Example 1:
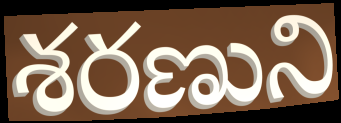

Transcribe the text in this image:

శరణుని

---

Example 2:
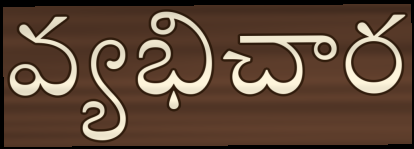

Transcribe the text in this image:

వ్యభిచార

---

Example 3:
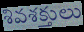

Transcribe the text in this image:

శివశక్తులు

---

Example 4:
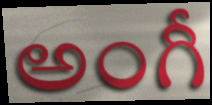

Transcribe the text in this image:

అంగీ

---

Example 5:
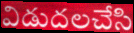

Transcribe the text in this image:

విడుదలచేసి